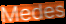
Medes